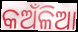
କଅଁଳିଆ